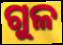
ଗୁଳ